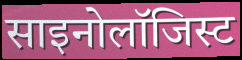
साइनोलॉजिस्ट